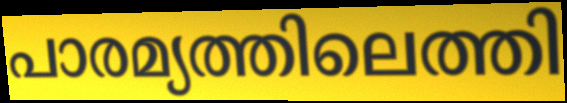
പാരമ്യത്തിലെത്തി